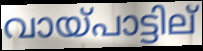
വായ്പാട്ടില്